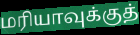
மரியாவுக்குத்